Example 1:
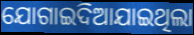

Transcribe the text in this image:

ଯୋଗାଇଦିଆଯାଇଥିଲା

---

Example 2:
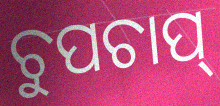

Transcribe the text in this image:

ଚୁପଚାପ୍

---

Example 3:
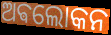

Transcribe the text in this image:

ଅଵଲୋକନ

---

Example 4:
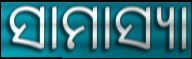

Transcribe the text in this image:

ସାମାସ୍ୟା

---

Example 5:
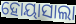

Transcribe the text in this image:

ହୋୟାସାଲା